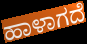
ಹಾಳಾಗದೆ